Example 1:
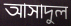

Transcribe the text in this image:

আসাদুল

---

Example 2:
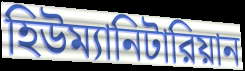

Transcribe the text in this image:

হিউম্যানিটারিয়ান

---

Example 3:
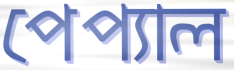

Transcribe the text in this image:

পেপ্যাল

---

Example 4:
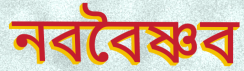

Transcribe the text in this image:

নববৈষ্ণব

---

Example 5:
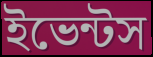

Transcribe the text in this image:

ইভেন্টস